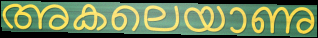
അകലെയാണു